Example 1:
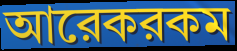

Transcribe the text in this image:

আরেকরকম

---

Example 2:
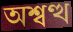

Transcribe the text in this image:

অশ্বত্থ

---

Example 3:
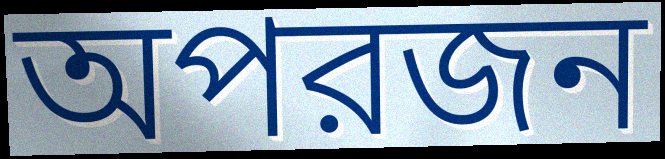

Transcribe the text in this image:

অপরজন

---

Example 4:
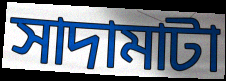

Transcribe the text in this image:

সাদামাটা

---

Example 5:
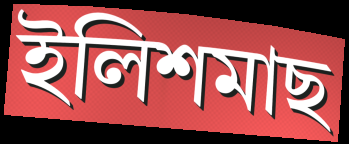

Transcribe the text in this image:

ইলিশমাছ